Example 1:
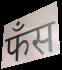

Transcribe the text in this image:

फँस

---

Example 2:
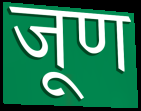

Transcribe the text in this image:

जूण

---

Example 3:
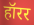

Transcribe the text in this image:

हॉरर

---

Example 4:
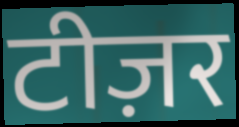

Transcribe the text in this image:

टीज़र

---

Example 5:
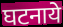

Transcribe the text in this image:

घटनाये